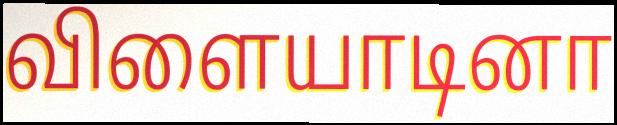
விளையாடினா